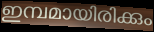
ഇമ്പമായിരിക്കും